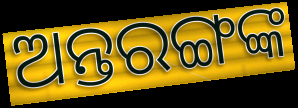
ଅନ୍ତରଙ୍ଗଙ୍କ